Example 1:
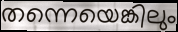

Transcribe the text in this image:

തന്നെയെങ്കിലും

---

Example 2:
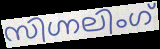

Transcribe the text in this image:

സിഗ്നലിംഗ്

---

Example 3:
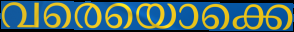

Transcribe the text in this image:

വരെയൊക്കെ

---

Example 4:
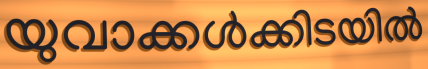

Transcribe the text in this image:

യുവാക്കൾക്കിടയിൽ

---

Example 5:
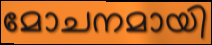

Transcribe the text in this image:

മോചനമായി